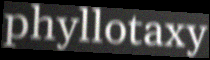
phyllotaxy